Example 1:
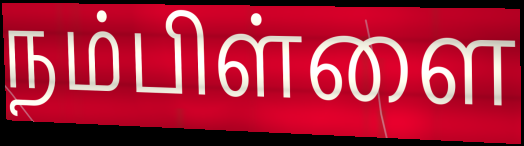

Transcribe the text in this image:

நம்பிள்ளை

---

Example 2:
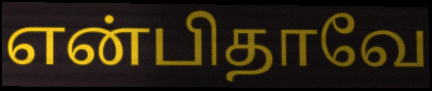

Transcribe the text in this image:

என்பிதாவே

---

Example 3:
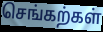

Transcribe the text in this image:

செங்கற்கள்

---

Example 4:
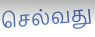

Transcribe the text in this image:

செல்வது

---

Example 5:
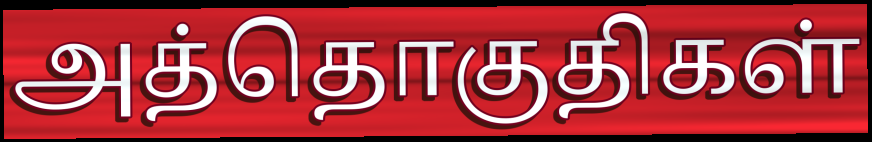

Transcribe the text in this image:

அத்தொகுதிகள்